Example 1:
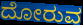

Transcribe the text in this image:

ದೋರುವ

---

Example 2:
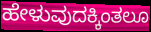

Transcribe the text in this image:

ಹೇಳುವುದಕ್ಕಿಂತಲೂ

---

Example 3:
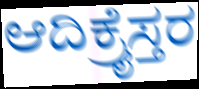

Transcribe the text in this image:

ಆದಿಕ್ರೈಸ್ತರ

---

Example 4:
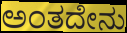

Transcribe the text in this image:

ಅಂತದೇನು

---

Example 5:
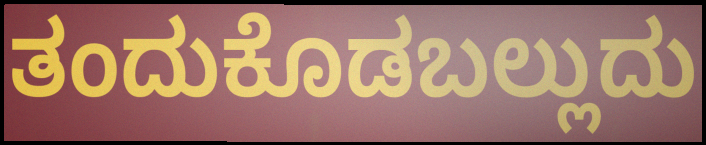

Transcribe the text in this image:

ತಂದುಕೊಡಬಲ್ಲುದು